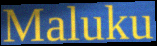
Maluku